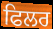
ਫਿਲਰ